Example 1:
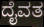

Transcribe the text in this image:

ದೈವತ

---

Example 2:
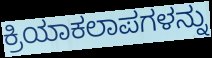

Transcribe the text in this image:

ಕ್ರಿಯಾಕಲಾಪಗಳನ್ನು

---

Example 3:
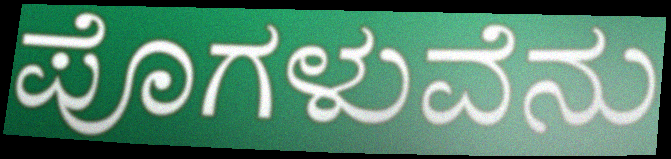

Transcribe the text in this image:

ಪೊಗಳುವೆನು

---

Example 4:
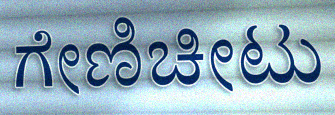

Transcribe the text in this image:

ಗೇಣಿಚೀಟು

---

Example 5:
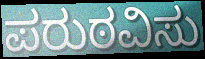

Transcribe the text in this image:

ಪರುಠವಿಸು